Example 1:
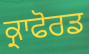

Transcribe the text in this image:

ਕ੍ਰਾਫੋਰਡ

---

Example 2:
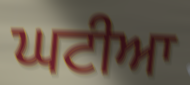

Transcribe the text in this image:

ਘਟੀਆ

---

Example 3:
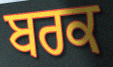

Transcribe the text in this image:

ਬਰਕ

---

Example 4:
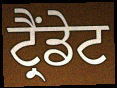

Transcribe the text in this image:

ਟ੍ਰੈਂਡੇਟ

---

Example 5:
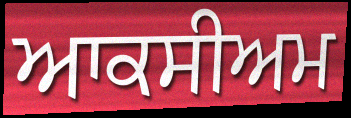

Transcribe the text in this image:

ਆਕਸੀਅਮ